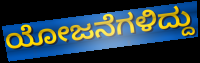
ಯೋಜನೆಗಳಿದ್ದು